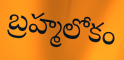
బ్రహ్మలోకం